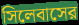
সিলেবাসের